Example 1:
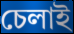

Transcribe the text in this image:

চেলাই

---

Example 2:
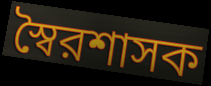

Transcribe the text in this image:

স্বৈরশাসক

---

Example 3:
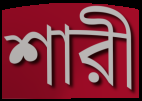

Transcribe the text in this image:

শারী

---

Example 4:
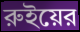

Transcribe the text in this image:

রুইয়ের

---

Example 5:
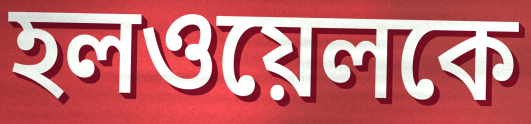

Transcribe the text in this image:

হলওয়েলকে